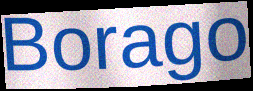
Borago